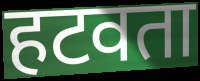
हटवता